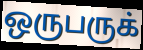
ஒருபருக்